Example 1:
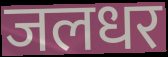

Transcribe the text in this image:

जलधर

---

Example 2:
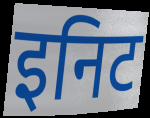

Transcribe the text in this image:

इनिट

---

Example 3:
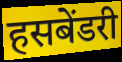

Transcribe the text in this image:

हसबेंडरी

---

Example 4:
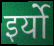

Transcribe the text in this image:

इर्यो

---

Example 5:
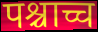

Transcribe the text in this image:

पश्चाच्च